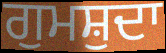
ਗੁਮਸ਼ੁਦਾ